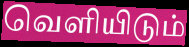
வெளியிடும்